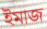
ইমাজ